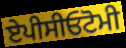
ਏਪੀਸੀਓਟੋਮੀ